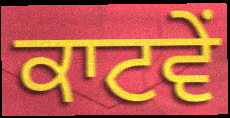
ਕਾਟਵੇਂ